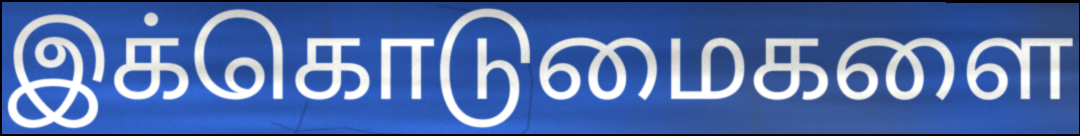
இக்கொடுமைகளை